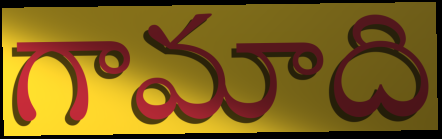
గామాది